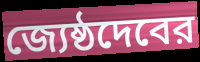
জ্যেষ্ঠদেবের